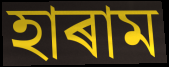
হাৰাম